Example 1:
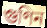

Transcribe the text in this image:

গুণিন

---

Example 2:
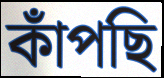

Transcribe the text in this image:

কাঁপছি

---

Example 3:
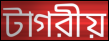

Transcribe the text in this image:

টাগরীয়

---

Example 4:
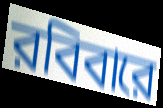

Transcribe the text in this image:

রবিবারে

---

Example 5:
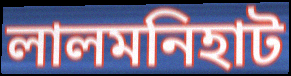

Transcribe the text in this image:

লালমনিহাট